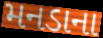
મનડાના